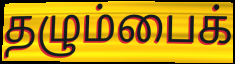
தழும்பைக்